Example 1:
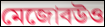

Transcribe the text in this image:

মেজোবউও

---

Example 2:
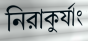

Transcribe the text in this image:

নিরাকুর্যাং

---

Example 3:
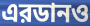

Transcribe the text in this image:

এরডানও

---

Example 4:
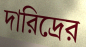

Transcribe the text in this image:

দারিদ্রের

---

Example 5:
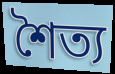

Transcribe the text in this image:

শৈত্য